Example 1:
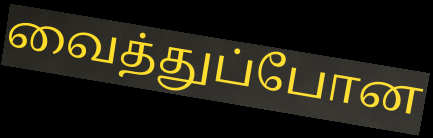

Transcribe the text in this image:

வைத்துப்போன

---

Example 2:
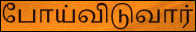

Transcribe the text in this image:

போய்விடுவார்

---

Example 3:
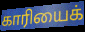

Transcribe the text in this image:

காரியைக்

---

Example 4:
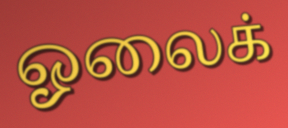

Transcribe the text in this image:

ஓலைக்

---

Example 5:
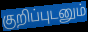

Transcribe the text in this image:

குறிப்புடனும்